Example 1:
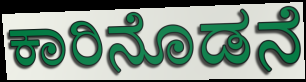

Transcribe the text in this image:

ಕಾರಿನೊಡನೆ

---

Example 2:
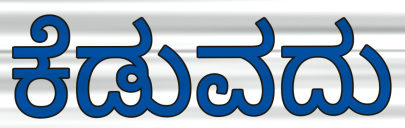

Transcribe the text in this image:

ಕೆಡುವದು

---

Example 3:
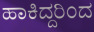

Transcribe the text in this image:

ಹಾಕಿದ್ದರಿಂದ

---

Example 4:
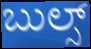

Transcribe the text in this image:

ಬುಲ್ಸ್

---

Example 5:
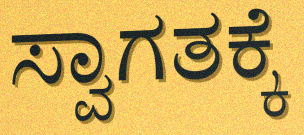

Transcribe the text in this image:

ಸ್ವಾಗತಕ್ಕೆ